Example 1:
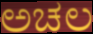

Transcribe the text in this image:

ಅಚಲ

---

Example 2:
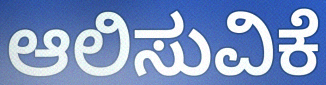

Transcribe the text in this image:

ಆಲಿಸುವಿಕೆ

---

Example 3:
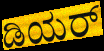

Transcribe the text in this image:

ಡಿಯರ್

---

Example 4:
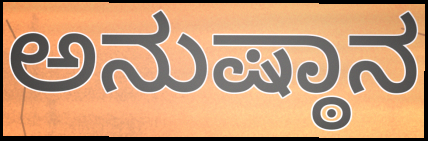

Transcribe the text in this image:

ಅನುಷ್ಠಾನ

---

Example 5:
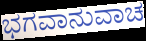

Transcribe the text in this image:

ಭಗವಾನುವಾಚ